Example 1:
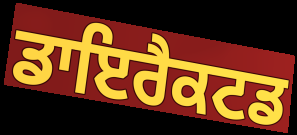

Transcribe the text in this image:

ਡਾਇਰੈਕਟਡ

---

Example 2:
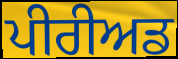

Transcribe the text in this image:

ਪੀਰੀਅਡ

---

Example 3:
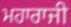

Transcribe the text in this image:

ਮਹਾਰਾਜੀ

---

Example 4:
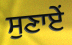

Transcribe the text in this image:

ਸੁਣਾਏਂ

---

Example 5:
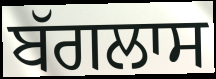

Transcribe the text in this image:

ਬੱਗਲਾਸ